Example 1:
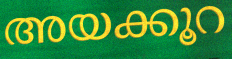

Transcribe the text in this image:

അയക്കൂറ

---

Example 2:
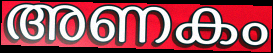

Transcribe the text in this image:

അണകം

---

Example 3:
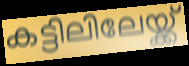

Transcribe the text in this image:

കട്ടിലിലേയ്ക്ക്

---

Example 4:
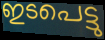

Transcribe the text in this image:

ഇടപെട്ടു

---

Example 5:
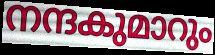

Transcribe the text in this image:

നന്ദകുമാറും